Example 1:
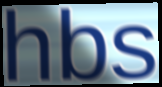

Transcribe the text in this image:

hbs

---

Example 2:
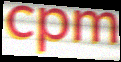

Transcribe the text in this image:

cpm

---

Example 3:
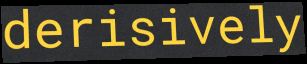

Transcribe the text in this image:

derisively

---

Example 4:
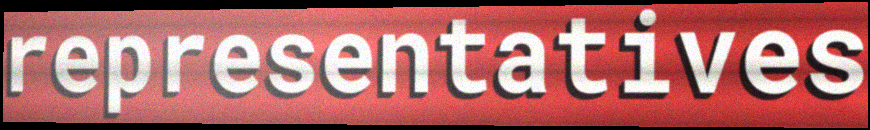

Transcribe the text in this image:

representatives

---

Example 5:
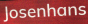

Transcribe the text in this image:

Josenhans